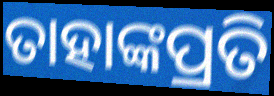
ତାହାଙ୍କପ୍ରତି